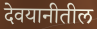
देवयानीतील